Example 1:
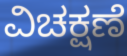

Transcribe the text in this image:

ವಿಚಕ್ಷಣೆ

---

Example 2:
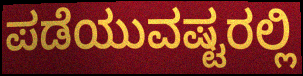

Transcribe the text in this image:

ಪಡೆಯುವಷ್ಟರಲ್ಲಿ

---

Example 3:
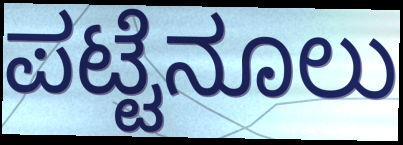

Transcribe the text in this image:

ಪಟ್ಟೆನೂಲು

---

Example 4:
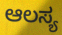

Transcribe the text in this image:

ಆಲಸ್ಯ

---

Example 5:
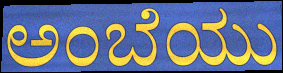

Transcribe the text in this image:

ಅಂಬೆಯು